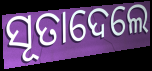
ସୂତାଦେଲେ